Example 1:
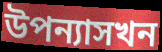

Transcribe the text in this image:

উপন্যাসখন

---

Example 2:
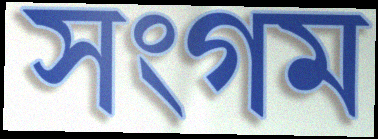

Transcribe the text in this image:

সংগম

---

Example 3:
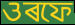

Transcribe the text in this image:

ওৰফে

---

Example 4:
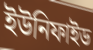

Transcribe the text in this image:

ইউনিফাইড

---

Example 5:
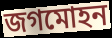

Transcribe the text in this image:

জগমোহন